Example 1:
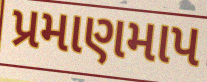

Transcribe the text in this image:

પ્રમાણમાપ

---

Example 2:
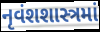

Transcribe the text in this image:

નૃવંશશાસ્ત્રમાં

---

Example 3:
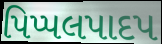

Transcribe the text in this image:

પિપ્પલપાદપ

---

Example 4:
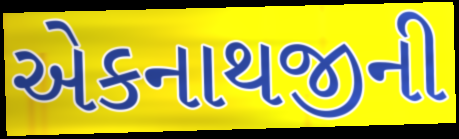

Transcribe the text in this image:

એકનાથજીની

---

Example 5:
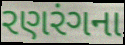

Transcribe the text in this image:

રણરંગના